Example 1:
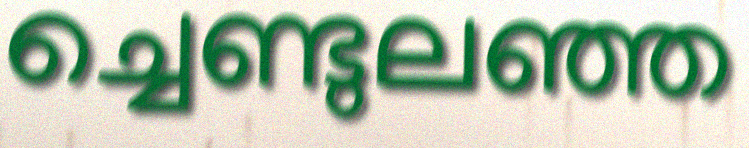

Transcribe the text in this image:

ച്ചെണ്ടുലഞ്ഞ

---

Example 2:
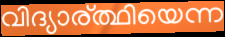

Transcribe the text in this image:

വിദ്യാര്ത്ഥിയെന്ന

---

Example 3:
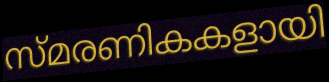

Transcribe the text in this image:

സ്മരണികകളായി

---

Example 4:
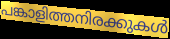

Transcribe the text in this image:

പങ്കാളിത്തനിരക്കുകൾ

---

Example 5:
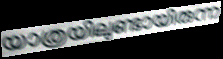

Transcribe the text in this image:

യാത്രയിലുണ്ടായിരുന്ന